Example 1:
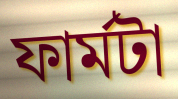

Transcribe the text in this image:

ফার্মটা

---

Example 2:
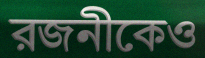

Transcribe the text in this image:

রজনীকেও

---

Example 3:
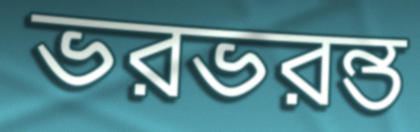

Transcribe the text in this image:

ভরভরন্ত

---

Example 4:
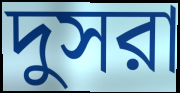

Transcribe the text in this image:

দুসরা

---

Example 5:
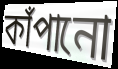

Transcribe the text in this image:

কাঁপানো